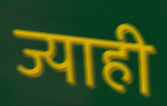
ज्याही